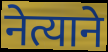
नेत्याने